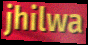
jhilwa